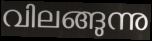
വിലങ്ങുന്നു